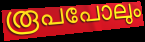
രൂപപോലും